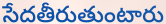
సేదతీరుతుంటారు